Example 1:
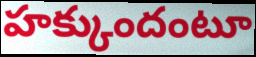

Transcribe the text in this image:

హక్కుందంటూ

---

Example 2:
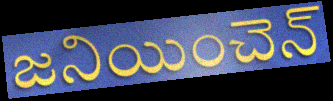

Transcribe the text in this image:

జనియించెన్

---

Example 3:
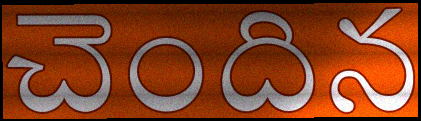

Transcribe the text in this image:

చెందిన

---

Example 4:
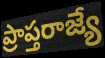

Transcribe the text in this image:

ప్రాప్తరాజ్యే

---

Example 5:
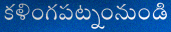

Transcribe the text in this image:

కళింగపట్నంనుండి